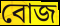
বোজ